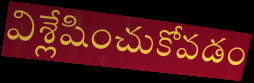
విశ్లేషించుకోవడం